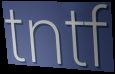
tntf